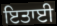
ਇਤਾਈ